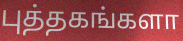
புத்தகங்களா